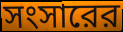
সংসারের